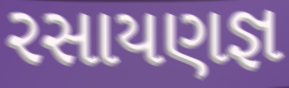
રસાયણજ્ઞ